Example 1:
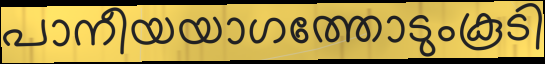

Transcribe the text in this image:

പാനീയയാഗത്തോടുംകൂടി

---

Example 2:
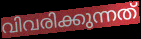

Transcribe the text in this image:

വിവരിക്കുന്നത്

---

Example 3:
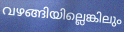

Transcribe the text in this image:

വഴങ്ങിയില്ലെങ്കിലും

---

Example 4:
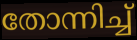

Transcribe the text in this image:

തോന്നിച്ച്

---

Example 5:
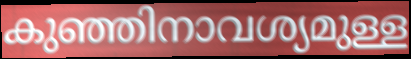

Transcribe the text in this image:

കുഞ്ഞിനാവശ്യമുള്ള